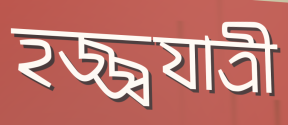
হজ্জ্বযাত্রী